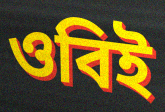
ওবিই